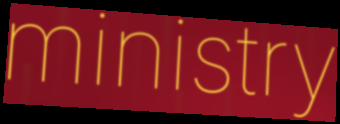
ministry